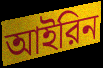
আইরিন